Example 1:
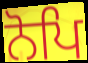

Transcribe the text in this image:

ਨੋਪਿ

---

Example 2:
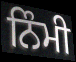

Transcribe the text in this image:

ਨਿੰਮੀ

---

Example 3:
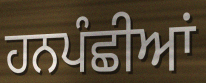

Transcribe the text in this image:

ਹਨਪੰਛੀਆਂ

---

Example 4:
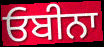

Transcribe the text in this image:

ਓਬੀਨਾ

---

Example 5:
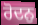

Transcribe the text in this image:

ਰੋਦਨੁ